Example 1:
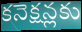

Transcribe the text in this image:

కనెక్షన్లకు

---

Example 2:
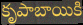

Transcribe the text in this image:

కృపాబాయికి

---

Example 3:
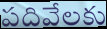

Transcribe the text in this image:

పదివేలకు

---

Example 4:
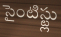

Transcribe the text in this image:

సైంటిస్ట్లు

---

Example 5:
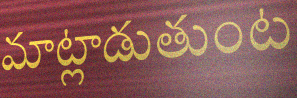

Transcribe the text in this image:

మాట్లాడుతుంట